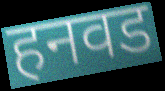
हनवड